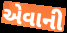
એવાની